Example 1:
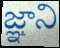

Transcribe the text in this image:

జ్ఞాని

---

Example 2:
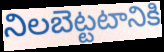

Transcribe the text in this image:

నిలబెట్టటానికి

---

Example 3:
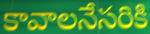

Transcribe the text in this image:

కావాలనేసరికి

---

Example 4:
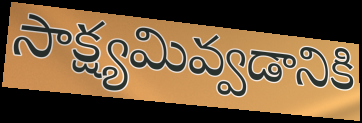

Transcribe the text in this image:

సాక్ష్యమివ్వడానికి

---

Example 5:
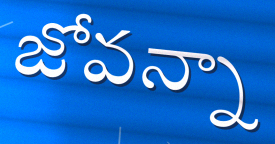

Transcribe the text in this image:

జోవన్నా